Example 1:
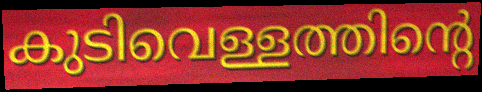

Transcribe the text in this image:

കുടിവെള്ളത്തിന്റെ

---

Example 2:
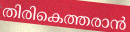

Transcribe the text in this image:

തിരികെത്തരാൻ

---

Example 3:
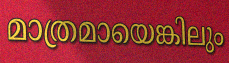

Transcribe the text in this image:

മാത്രമായെങ്കിലും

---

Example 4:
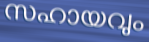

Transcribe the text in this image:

സഹായവും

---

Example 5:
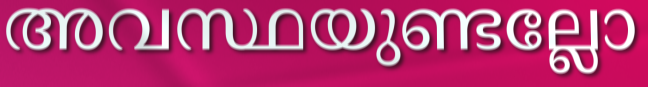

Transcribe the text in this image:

അവസ്ഥയുണ്ടല്ലോ